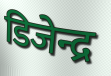
डिजेन्द्र